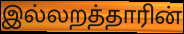
இல்லறத்தாரின்